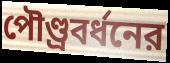
পৌণ্ড্রবর্ধনের